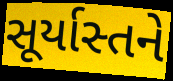
સૂર્યાસ્તને